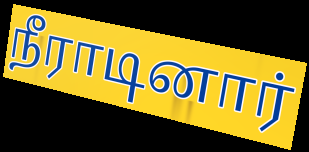
நீராடினார்